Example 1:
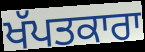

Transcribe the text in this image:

ਖੱਪਤਕਾਰਾ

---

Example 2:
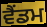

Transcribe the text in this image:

ਵੈਂਡਮ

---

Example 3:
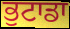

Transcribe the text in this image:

ਭੁਟਾਡਾ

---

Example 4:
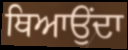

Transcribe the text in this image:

ਥਿਆਉਂਦਾ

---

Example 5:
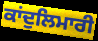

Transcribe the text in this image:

ਕਾਂਦੁਲਿਮਾਰੀ